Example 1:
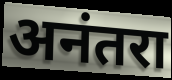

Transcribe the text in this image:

अनंतरा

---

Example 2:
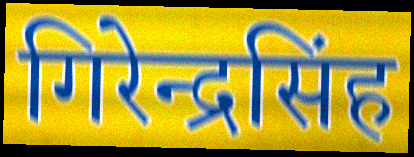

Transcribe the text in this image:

गिरेन्द्रसिंह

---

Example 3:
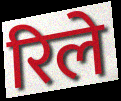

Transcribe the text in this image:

रिले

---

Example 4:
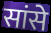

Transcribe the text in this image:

सांसे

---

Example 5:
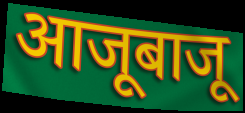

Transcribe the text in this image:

आजूबाजू